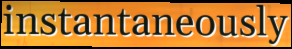
instantaneously